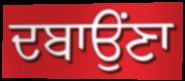
ਦਬਾਉਂਣਾ